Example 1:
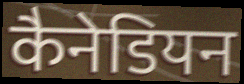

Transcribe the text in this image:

कैनेडियन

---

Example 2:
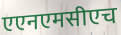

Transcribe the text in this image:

एएनएमसीएच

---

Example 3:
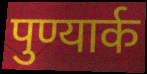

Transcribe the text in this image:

पुण्यार्क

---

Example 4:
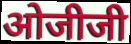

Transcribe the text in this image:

ओजीजी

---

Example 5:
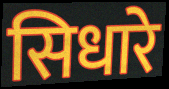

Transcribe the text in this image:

सिधारे